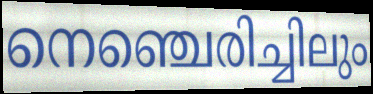
നെഞ്ചെരിച്ചിലും